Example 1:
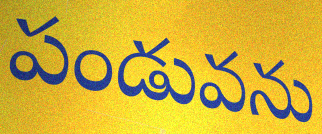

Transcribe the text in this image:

పండువను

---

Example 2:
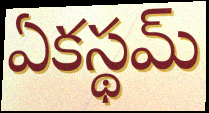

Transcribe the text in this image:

ఏకస్థమ్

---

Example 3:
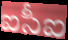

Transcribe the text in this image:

ఐసీఐ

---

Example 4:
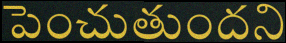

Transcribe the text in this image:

పెంచుతుందని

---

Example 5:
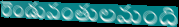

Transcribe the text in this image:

రెండువంతులమంది